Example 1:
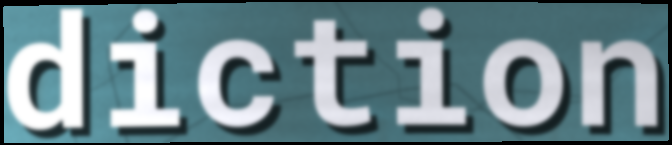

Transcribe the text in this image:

diction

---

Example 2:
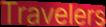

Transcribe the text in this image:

Travelers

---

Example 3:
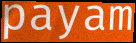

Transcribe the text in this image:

payam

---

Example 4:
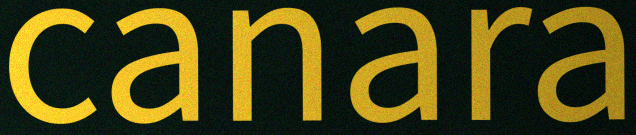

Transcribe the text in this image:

canara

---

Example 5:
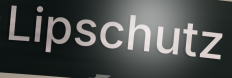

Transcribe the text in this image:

Lipschutz